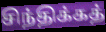
சிந்திக்கத்